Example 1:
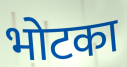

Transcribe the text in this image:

भोटका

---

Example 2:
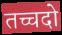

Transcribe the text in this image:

तच्चदो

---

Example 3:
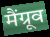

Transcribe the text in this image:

मैंग्रूव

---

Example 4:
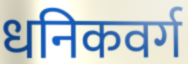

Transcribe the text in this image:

धनिकवर्ग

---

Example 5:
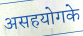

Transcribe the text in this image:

असहयोगके